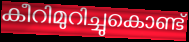
കീറിമുറിച്ചുകൊണ്ട്